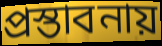
প্রস্তাবনায়